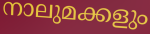
നാലുമക്കളും